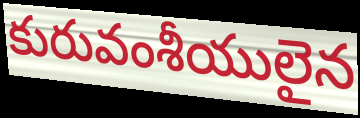
కురువంశీయులైన